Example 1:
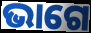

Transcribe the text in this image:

ଭାଗେ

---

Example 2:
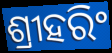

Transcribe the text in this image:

ଶ୍ରୀହରିଂ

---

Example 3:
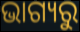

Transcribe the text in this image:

ଭାଗ୍ୟରୁ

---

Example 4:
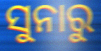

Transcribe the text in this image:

ସୁନାରୁ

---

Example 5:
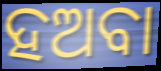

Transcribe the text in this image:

ହଅବା